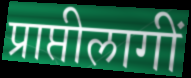
प्राप्तीलागीं